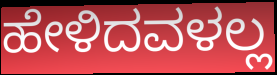
ಹೇಳಿದವಳಲ್ಲ